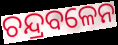
ଚନ୍ଦ୍ରବଳେନ